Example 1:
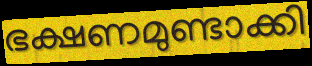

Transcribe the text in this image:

ഭക്ഷണമുണ്ടാക്കി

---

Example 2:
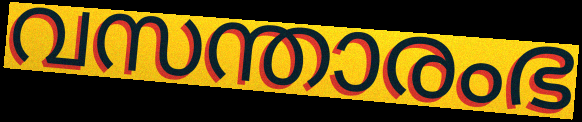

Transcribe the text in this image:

വസന്താരംഭ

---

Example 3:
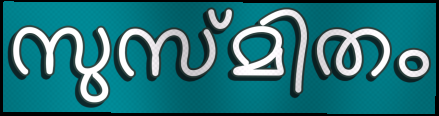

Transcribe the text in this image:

സുസ്മിതം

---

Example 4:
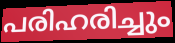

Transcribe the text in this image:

പരിഹരിച്ചും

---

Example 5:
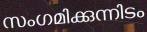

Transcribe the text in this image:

സംഗമിക്കുന്നിടം